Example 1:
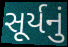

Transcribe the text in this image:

સૂર્યનું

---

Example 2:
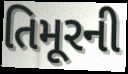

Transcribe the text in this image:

તિમૂરની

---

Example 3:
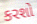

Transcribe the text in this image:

કરશો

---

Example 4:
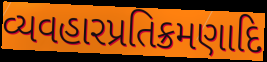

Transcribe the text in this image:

વ્યવહારપ્રતિક્રમણાદિ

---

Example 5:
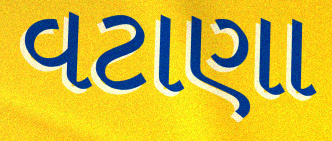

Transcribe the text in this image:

વટાણા